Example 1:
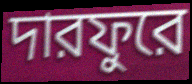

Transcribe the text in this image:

দারফুরে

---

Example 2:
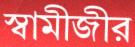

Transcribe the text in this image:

স্বামীজীর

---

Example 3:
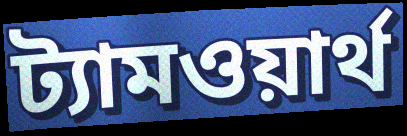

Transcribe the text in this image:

ট্যামওয়ার্থ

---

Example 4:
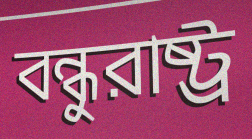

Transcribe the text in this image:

বন্ধুরাষ্ট্র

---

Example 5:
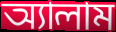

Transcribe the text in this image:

অ্যালাম